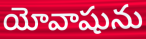
యోవాషును